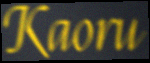
Kaoru